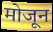
मोजून